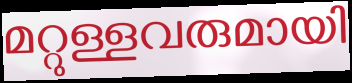
മറ്റുള്ളവരുമായി